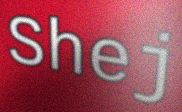
Shej